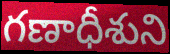
గణాధీశుని